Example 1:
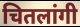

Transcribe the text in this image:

चितलांगी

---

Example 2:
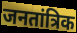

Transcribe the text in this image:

जनतांत्रिक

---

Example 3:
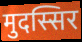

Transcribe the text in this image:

मुदस्सिर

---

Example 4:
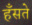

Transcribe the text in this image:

हँसते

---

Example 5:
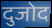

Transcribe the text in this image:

दुजोद